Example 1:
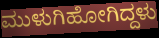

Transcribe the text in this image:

ಮುಳುಗಿಹೋಗಿದ್ದಳು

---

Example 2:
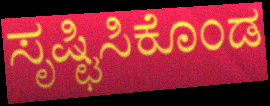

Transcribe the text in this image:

ಸೃಷ್ಟಿಸಿಕೊಂಡ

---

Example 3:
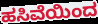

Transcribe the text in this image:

ಹಸಿವೆಯಿಂದ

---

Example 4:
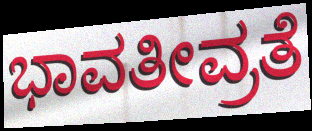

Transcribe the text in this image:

ಭಾವತೀವ್ರತೆ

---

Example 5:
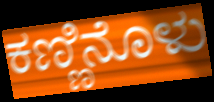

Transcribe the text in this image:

ಕಣ್ಣಿನೊಳು